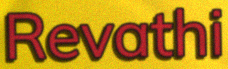
Revathi